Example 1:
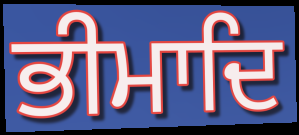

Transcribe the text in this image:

ਭੀਮਾਦਿ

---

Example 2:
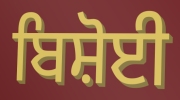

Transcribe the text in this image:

ਬਿਸ਼ੋਈ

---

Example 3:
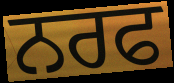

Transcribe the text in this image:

ਨਰਫ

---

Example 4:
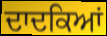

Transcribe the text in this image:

ਦਾਦਕਿਆਂ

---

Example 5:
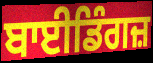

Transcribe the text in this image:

ਬਾਈਡਿੰਗਜ਼